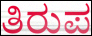
ತಿರುಪ